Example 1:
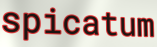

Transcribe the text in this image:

spicatum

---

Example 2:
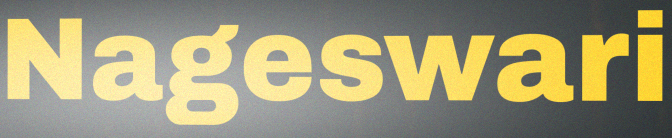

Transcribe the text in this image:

Nageswari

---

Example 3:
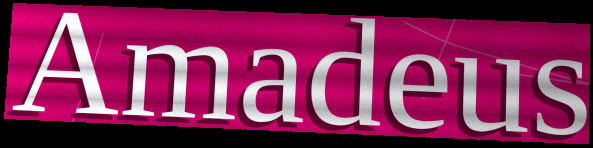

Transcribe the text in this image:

Amadeus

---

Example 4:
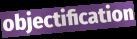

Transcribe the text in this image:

objectification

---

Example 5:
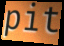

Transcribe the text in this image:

pit